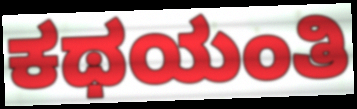
ಕಥಯಂತಿ